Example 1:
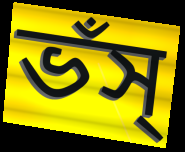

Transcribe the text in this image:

ভঁস্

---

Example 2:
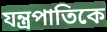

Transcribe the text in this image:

যন্ত্রপাতিকে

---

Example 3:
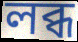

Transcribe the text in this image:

লব্ধ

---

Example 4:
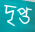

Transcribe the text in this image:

দৃপ্ত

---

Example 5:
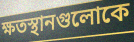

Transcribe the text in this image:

ক্ষতস্থানগুলোকে